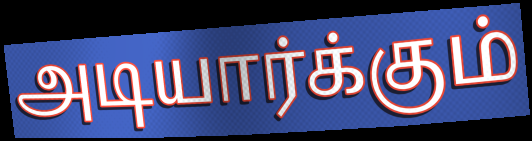
அடியார்க்கும்